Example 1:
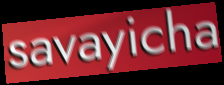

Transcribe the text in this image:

savayicha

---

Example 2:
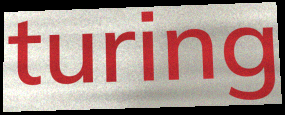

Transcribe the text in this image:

turing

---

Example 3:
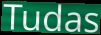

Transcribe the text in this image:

Tudas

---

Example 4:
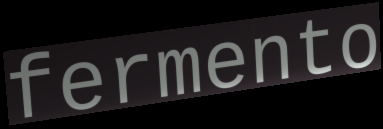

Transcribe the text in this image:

fermento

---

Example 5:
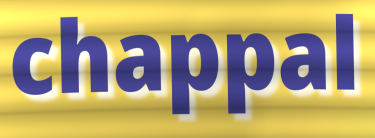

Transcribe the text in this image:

chappal